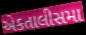
એકતાલીસમા